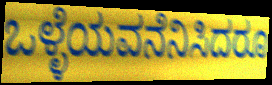
ಒಳ್ಳೆಯವನೆನಿಸಿದರೂ